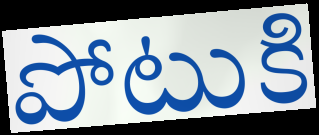
పోటుకి